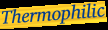
Thermophilic